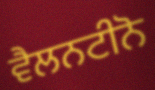
ਵੈਲਨਟੀਨੋ